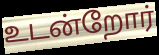
உடன்றோர்